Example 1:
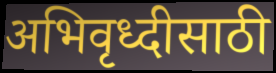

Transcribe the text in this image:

अभिवृध्दीसाठी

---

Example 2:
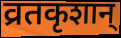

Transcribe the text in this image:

व्रतकृशान्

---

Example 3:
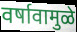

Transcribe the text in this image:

वर्षावामुळे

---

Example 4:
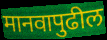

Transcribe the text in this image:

मानवापुढील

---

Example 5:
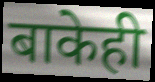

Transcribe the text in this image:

बाकेही